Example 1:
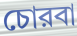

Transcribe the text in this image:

চোরবা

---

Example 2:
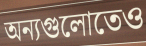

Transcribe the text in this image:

অন্যগুলোতেও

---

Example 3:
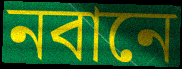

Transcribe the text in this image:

নবানে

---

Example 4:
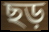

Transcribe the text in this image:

ছড়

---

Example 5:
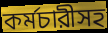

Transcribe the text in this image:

কর্মচারীসহ